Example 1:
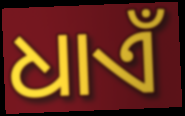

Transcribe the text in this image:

ଧାଏଁ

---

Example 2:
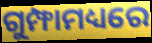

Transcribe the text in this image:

ଗୁମ୍ଫାମଧ୍ୟରେ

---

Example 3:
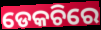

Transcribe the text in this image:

ଡେକଚିରେ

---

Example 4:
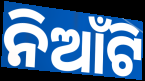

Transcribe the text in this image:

ନିଆଁଟି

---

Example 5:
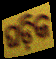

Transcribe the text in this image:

ଘଡ଼ିକ